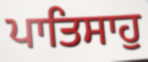
ਪਾਤਿਸਾਹੁ